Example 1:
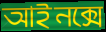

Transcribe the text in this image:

আইনক্সে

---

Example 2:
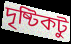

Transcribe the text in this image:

দৃষ্টিকটু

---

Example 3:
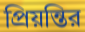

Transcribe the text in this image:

প্রিয়ন্তির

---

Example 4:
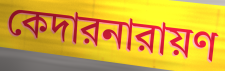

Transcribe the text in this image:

কেদারনারায়ণ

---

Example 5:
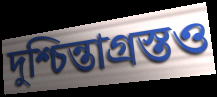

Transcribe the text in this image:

দুশ্চিন্তাগ্রস্তও